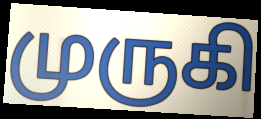
முருகி